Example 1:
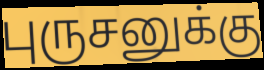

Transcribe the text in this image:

புருசனுக்கு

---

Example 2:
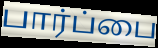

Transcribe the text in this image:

பார்ப்பை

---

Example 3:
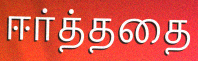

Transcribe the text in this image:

ஈர்த்ததை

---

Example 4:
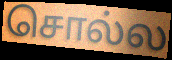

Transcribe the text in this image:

சொல்ல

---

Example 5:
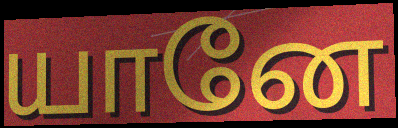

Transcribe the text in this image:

யானே